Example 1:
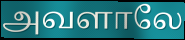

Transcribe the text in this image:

அவளாலே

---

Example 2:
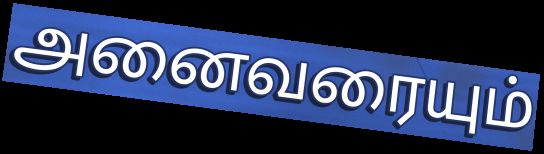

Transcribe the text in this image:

அனைவரையும்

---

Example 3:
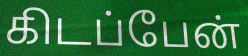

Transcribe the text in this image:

கிடப்பேன்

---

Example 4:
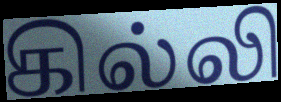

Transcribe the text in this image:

கில்லி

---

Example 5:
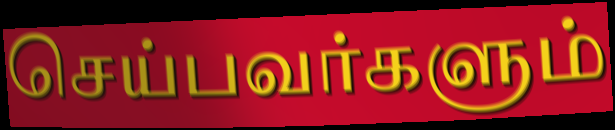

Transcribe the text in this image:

செய்பவர்களும்